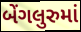
બેંગલુરુમાં